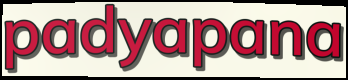
padyapana